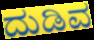
ದುಡಿವ